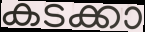
കടക്കാ